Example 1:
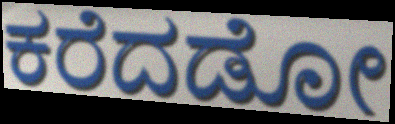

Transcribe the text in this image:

ಕರೆದಡೋ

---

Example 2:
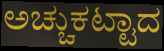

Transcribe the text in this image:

ಅಚ್ಚುಕಟ್ಟಾದ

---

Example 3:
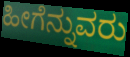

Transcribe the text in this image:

ಹೀಗೆನ್ನುವರು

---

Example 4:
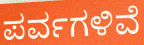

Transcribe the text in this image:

ಪರ್ವಗಳಿವೆ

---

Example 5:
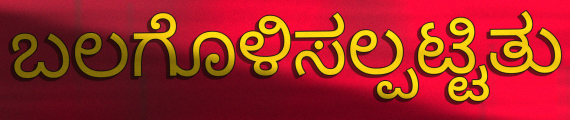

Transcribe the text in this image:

ಬಲಗೊಳಿಸಲ್ಪಟ್ಟಿತು